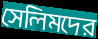
সেলিমদের